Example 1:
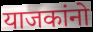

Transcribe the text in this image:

याजकांनो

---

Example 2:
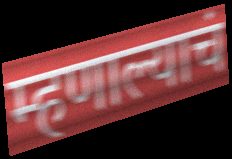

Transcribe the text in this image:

म्हणाल्याचं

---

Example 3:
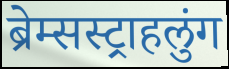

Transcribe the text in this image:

ब्रेम्सस्ट्राहलुंग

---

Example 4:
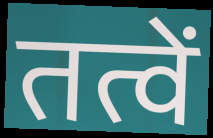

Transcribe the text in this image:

तत्वें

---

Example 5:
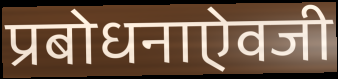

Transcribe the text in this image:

प्रबोधनाऐवजी